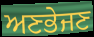
ਅਣਭੇਜਣ